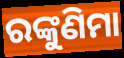
ରଙ୍କୁଣିମା